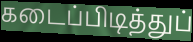
கடைப்பிடித்துப்